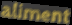
aliment